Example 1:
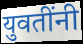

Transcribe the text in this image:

युवतींनी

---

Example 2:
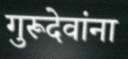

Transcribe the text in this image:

गुरूदेवांना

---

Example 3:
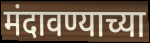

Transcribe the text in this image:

मंदावण्याच्या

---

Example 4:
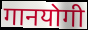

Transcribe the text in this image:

गानयोगी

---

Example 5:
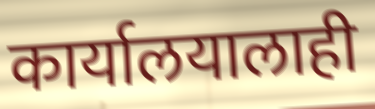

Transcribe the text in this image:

कार्यालयालाही